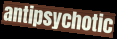
antipsychotic